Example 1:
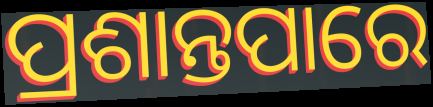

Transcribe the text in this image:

ପ୍ରଶାନ୍ତପାରେ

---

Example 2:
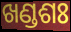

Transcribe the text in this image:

ଖଣ୍ଡଶଃ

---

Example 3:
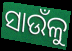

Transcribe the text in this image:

ସାଉଁଳୁ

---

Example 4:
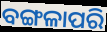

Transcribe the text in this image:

ବଙ୍ଗଳାପରି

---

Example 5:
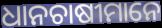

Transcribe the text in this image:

ଧାନଚାଷୀମାନେ